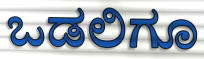
ಒಡಲಿಗೂ